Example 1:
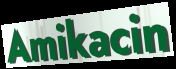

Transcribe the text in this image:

Amikacin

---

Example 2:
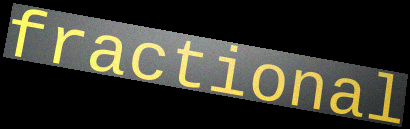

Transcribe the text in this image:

fractional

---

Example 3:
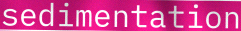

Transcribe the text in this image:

sedimentation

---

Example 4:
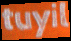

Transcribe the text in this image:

tuyil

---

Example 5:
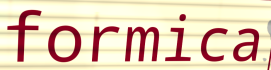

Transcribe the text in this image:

formica